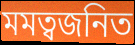
মমত্বজনিত